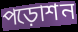
পড়োশন